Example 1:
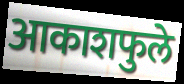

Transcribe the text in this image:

आकाशफुले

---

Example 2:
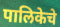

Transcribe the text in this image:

पालिकेचे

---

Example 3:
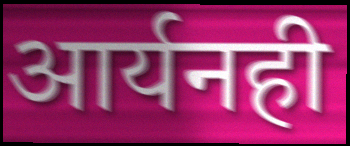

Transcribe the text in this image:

आर्यनही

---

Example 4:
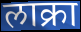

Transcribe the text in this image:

लाक्रा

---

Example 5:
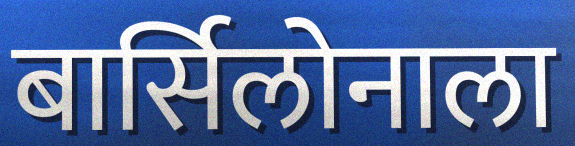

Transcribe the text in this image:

बार्सिलोनाला